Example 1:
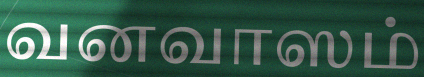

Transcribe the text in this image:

வனவாஸம்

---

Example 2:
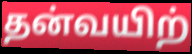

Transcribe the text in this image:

தன்வயிற்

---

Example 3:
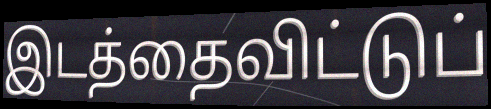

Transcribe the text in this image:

இடத்தைவிட்டுப்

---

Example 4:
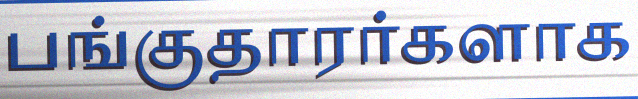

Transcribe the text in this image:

பங்குதாரர்களாக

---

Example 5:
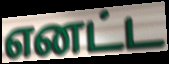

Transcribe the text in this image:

எனட்ட